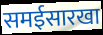
समईसारखा